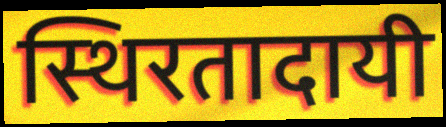
स्थिरतादायी